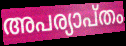
അപര്യാപ്തം